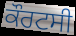
ਕੌਰਟਸੀ